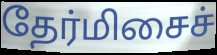
தேர்மிசைச்